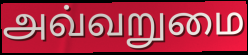
அவ்வறுமை